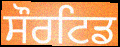
ਸੌਰਟਿਡ